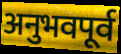
अनुभवपूर्व